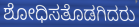
ಶೋಧಿಸತೊಡಗಿದರು